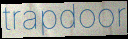
trapdoor